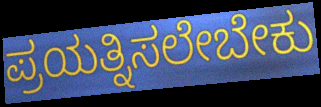
ಪ್ರಯತ್ನಿಸಲೇಬೇಕು